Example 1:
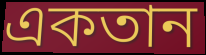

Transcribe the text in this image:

একতান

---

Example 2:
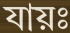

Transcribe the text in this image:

যায়ঃ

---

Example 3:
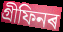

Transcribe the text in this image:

গ্ৰীফিনৰ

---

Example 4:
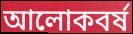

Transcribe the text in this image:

আলোকবৰ্ষ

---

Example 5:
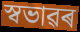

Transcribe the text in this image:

স্বভাৱৰ